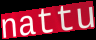
nattu